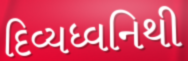
દિવ્યધ્વનિથી